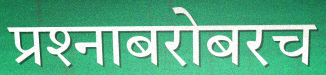
प्रश्‍नाबरोबरच